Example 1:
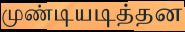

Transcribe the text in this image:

முண்டியடித்தன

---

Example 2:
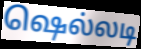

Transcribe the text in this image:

ஷெல்லடி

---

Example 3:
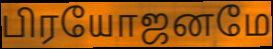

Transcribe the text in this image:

பிரயோஜனமே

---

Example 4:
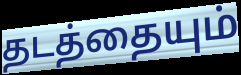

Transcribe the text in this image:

தடத்தையும்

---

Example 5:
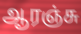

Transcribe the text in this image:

ஆரஞ்சு